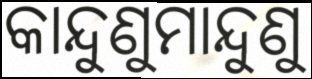
କାନ୍ଦୁଣୁମାନ୍ଦୁଣୁ